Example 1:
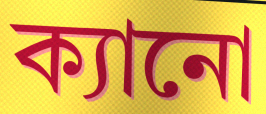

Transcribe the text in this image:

ক্যানো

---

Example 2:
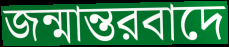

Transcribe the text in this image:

জন্মান্তরবাদে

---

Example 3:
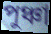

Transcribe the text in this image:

পুঞ্চা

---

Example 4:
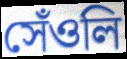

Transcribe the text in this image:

সেঁওলি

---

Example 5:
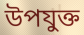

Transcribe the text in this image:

উপযুক্ত